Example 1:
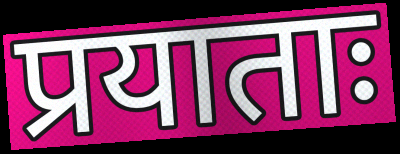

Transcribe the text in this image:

प्रयाताः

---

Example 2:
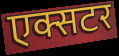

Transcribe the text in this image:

एक्सटर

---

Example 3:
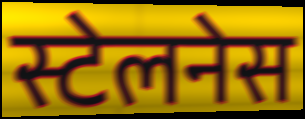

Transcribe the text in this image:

स्टेलनेस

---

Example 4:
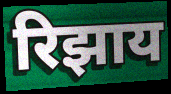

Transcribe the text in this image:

रिझाय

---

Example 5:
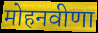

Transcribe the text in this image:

मोहनवीणा